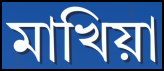
মাখিয়া